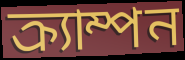
ক্র্যাম্পন